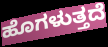
ಹೊಗಳುತ್ತದೆ